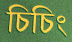
চিচিং